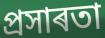
প্ৰসাৰতা